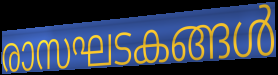
രാസഘടകങ്ങൾ